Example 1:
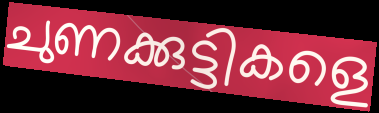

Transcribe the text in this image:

ചുണക്കുട്ടികളെ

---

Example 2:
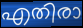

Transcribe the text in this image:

എതിരാ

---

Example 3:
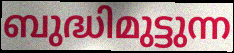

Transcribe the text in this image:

ബുദ്ധിമുട്ടുന്ന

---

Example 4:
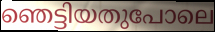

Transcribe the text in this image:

ഞെട്ടിയതുപോലെ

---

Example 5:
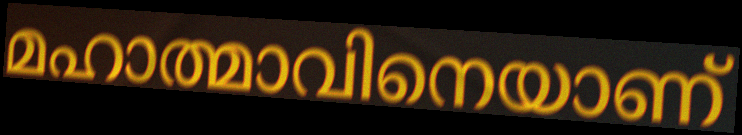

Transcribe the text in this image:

മഹാത്മാവിനെയാണ്